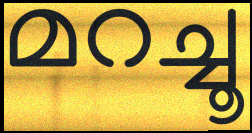
മറച്ചൂ